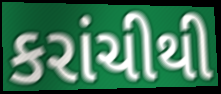
કરાંચીથી